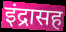
इंद्रासह